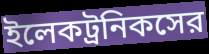
ইলেকট্রনিকসের